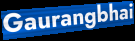
Gaurangbhai